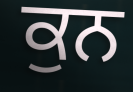
ਕੁਨ